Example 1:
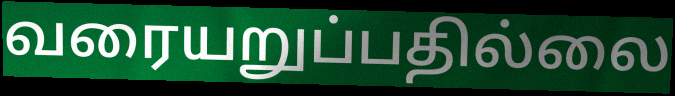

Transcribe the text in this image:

வரையறுப்பதில்லை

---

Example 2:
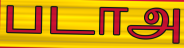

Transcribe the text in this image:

படாஅ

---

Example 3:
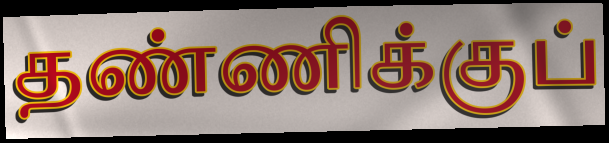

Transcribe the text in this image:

தண்ணிக்குப்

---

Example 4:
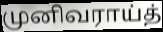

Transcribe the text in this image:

முனிவராய்த்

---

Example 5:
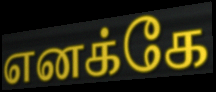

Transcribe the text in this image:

எனக்கே